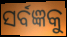
ସର୍ବଜ୍ଞକୁ